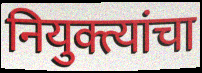
नियुक्त्यांचा